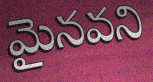
మైనవని